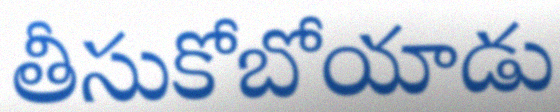
తీసుకోబోయాడు